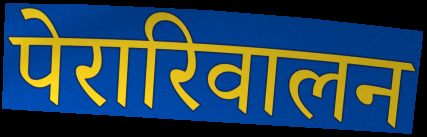
पेरारिवालन